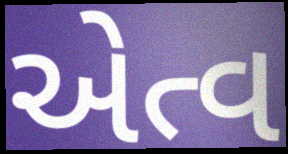
એત્વ